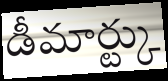
డీమార్ట్కు